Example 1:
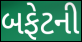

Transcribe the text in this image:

બફેટની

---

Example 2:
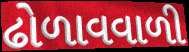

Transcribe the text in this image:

ઢોળાવવાળી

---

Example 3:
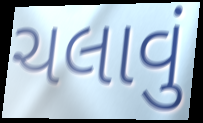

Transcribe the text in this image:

ચલાવું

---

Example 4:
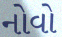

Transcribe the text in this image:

નોવો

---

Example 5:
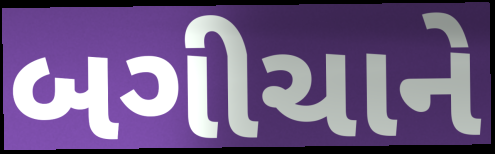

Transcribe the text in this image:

બગીચાને